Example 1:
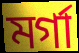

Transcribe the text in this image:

মৰ্গা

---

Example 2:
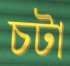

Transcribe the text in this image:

চটা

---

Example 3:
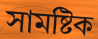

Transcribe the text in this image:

সামষ্টিক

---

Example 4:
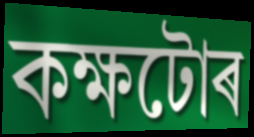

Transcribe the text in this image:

কক্ষটোৰ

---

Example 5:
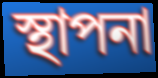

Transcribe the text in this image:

স্থাপনা